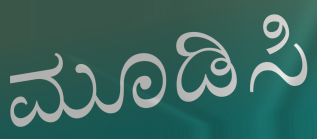
ಮೂಡಿಸಿ